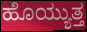
ಹೊಯ್ಯುತ್ತ